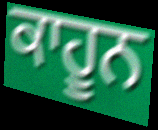
ਕਾਹੂਨ